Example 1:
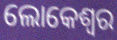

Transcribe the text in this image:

ଲୋକେଶ୍ୱର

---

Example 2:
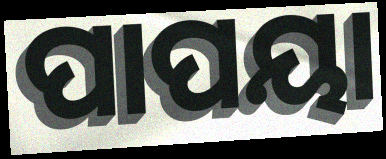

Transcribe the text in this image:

ପାପୟା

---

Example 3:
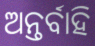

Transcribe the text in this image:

ଅନ୍ତର୍ବାହି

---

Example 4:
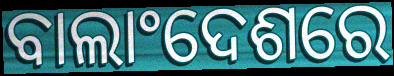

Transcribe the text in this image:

ବାଲାଂଦେଶରେ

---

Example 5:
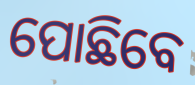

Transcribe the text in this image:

ପୋଛିବେ